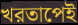
খরতাপেই